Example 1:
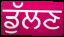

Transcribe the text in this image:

ਡੁੱਲਣ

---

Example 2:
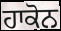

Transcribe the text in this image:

ਹਾਕੋਨ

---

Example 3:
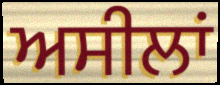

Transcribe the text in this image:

ਅਸੀਲਾਂ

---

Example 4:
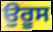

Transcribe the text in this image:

ਉਰੂਸ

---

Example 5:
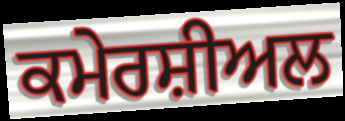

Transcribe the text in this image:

ਕਮੇਰਸ਼ੀਅਲ